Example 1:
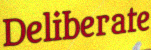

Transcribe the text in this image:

Deliberate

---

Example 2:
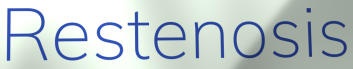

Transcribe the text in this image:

Restenosis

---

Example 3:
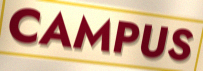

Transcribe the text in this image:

CAMPUS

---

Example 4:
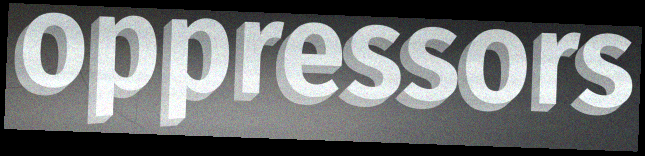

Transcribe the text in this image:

oppressors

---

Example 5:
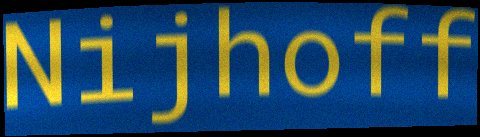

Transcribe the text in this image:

Nijhoff